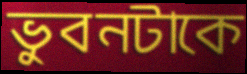
ভুবনটাকে